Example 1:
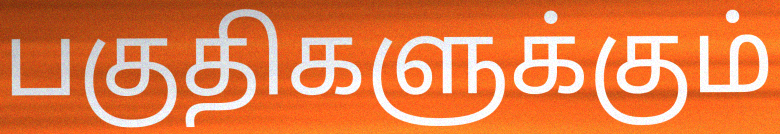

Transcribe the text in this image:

பகுதிகளுக்கும்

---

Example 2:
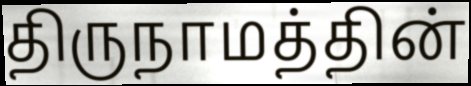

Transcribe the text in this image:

திருநாமத்தின்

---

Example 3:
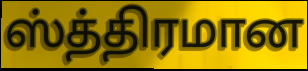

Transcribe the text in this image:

ஸ்த்திரமான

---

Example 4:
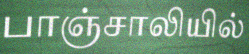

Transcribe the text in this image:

பாஞ்சாலியில்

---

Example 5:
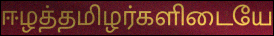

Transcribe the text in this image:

ஈழத்தமிழர்களிடையே